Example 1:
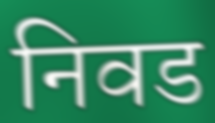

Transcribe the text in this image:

निवड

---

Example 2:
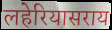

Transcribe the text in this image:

लहेरियासराय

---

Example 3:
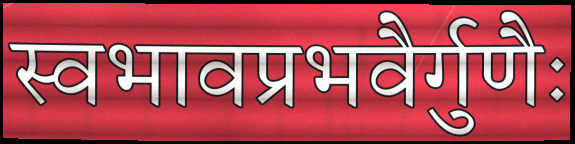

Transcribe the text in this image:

स्वभावप्रभवैर्गुणैः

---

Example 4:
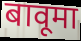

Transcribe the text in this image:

बावूमा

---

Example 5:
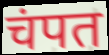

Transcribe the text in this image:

चंपत